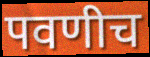
पवणीच